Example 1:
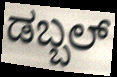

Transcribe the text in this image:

ಡಬ್ಬಲ್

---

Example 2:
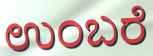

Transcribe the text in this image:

ಉಂಬರೆ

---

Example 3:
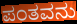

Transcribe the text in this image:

ಪಂತವನು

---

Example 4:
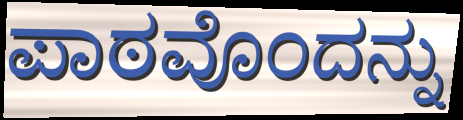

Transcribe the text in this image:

ಪಾಠವೊಂದನ್ನು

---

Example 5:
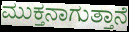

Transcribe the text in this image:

ಮುಕ್ತನಾಗುತ್ತಾನೆ